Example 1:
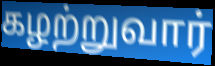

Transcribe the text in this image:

கழற்றுவார்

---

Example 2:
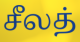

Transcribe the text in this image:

சீலத்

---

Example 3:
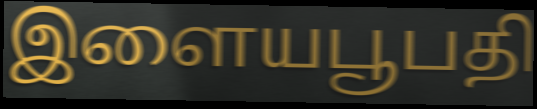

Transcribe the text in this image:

இளையபூபதி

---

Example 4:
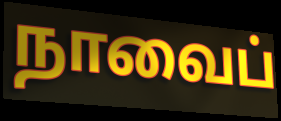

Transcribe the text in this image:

நாவைப்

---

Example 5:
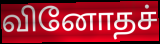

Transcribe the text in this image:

வினோதச்